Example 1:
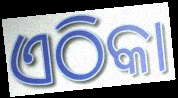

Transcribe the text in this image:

ଏଠିକା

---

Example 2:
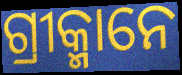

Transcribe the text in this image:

ଗ୍ରୀକ୍ମାନେ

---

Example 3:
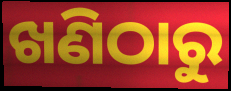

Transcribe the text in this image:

ଖଣିଠାରୁ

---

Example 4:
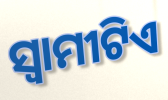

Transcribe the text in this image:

ସ୍ୱାମୀଟିଏ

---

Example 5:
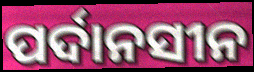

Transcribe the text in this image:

ପର୍ଦାନସୀନ